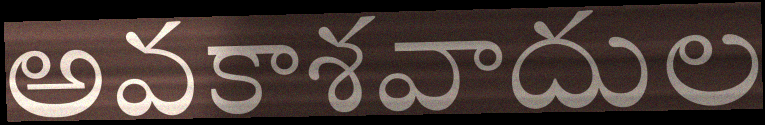
అవకాశవాదుల